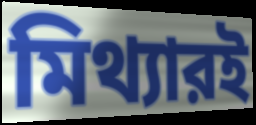
মিথ্যারই